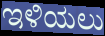
ಇಳಿಯಲು